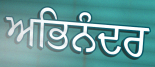
ਅਭਿਨੰਦਰ